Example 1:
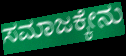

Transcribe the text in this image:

ಸಮಾಜಕ್ಕೇನು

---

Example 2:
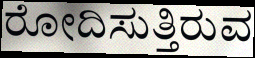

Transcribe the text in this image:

ರೋದಿಸುತ್ತಿರುವ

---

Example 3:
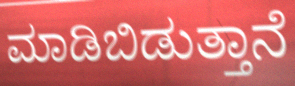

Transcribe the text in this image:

ಮಾಡಿಬಿಡುತ್ತಾನೆ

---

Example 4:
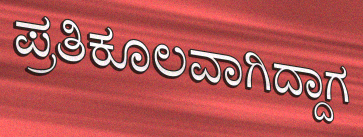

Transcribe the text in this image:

ಪ್ರತಿಕೂಲವಾಗಿದ್ದಾಗ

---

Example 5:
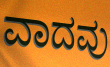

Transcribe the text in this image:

ವಾದವು